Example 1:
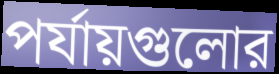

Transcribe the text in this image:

পর্যায়গুলোর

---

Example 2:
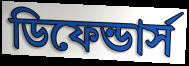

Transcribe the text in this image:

ডিফেন্ডার্স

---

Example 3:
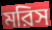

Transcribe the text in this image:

মরিস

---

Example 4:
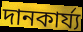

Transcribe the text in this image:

দানকার্য্য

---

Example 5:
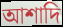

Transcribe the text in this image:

আশাদি